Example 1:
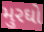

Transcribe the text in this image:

મુરઘો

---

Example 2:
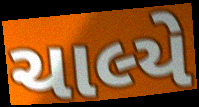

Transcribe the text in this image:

ચાલ્યે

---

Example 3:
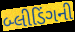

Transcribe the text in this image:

બ્લીડિંગની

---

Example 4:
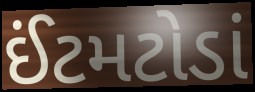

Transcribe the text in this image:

ઈંટમટોડાં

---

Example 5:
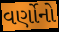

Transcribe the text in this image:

વર્ણોનો